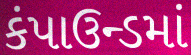
કંપાઉન્ડમાં